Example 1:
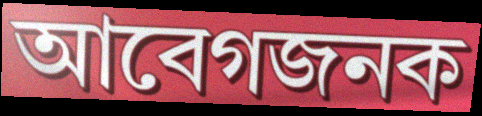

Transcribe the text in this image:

আবেগজনক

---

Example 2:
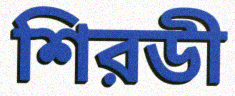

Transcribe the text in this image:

শিরডী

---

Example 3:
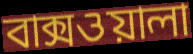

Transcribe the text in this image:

বাক্সওয়ালা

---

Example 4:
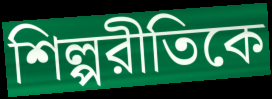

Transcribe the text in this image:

শিল্পরীতিকে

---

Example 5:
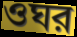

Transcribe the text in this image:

ওঘর